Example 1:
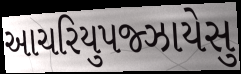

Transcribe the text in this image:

આચરિયુપજ્ઝાયેસુ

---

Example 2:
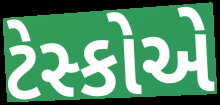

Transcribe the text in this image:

ટેસ્કોએ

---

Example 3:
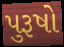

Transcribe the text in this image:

પુરૂષો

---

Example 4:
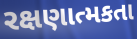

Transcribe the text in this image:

રક્ષણાત્મકતા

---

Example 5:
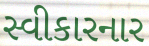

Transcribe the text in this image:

સ્વીકારનાર